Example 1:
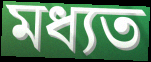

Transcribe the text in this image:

মধ্যত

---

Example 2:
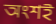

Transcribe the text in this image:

অংশই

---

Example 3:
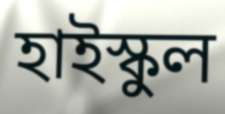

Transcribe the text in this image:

হাইস্কুল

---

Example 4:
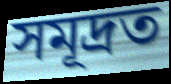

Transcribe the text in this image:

সমূদ্ৰত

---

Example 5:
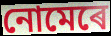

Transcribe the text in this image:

নোমেৰে